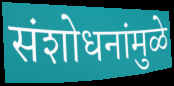
संशोधनांमुळे